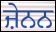
ਜ਼ੇਨਨ